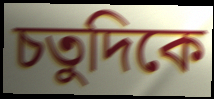
চতুদিকে